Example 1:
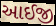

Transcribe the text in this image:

આઈજી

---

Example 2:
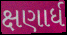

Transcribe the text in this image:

ક્ષણાર્ધ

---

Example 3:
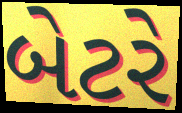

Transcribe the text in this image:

બેટરે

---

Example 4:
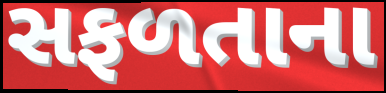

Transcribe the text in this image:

સફળતાના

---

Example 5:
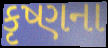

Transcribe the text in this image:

કૃષ્ણના